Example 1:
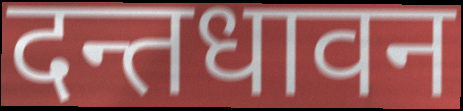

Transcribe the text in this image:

दन्तधावन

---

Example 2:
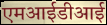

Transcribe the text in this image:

एमआईडीआई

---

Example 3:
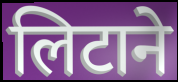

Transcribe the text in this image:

लिटाने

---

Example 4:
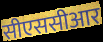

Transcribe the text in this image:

सीएससीआर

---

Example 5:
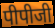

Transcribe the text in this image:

पीपीजी